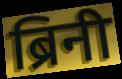
ब्रिनी